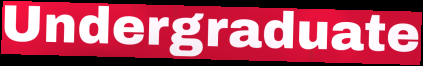
Undergraduate